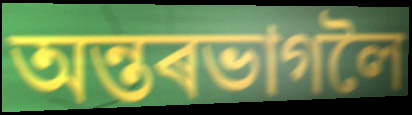
অন্তৰভাগলৈ